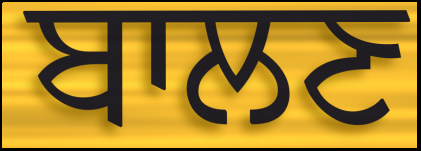
ਬਾਲਣ